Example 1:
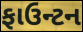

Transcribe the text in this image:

ફાઉન્ટન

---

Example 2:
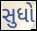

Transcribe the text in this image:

સુધો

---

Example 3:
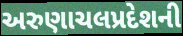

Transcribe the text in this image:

અરુણાચલપ્રદેશની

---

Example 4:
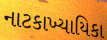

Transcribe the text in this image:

નાટકાખ્યાયિકા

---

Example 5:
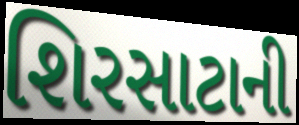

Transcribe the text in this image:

શિરસાટાની